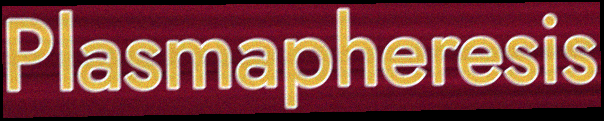
Plasmapheresis